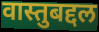
वास्तुबद्दल